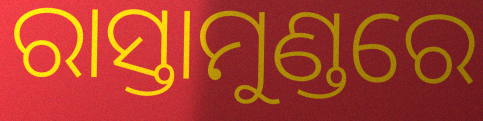
ରାସ୍ତାମୁଣ୍ଡରେ